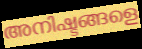
അനിഷ്ടങ്ങളെ